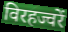
विरहज्वरें